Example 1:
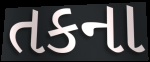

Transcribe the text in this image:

તકના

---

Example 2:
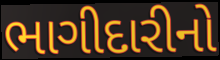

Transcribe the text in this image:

ભાગીદારીનો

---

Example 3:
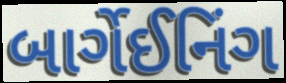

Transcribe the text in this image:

બાર્ગેઈનિંગ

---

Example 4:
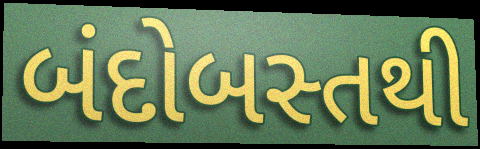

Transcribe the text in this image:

બંદોબસ્તથી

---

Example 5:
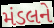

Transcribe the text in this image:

મંડલને